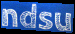
ndsu